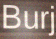
Burj